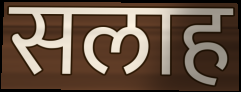
सलाह